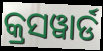
କ୍ରସୱାର୍ଡ